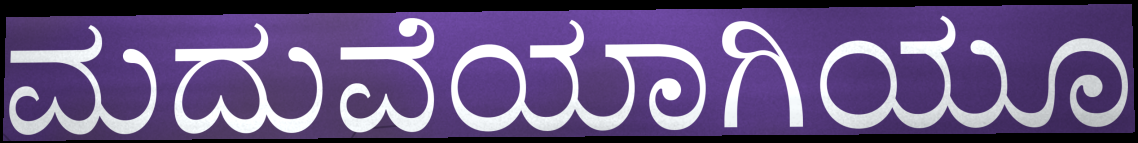
ಮದುವೆಯಾಗಿಯೂ